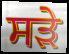
ਸੜੇ